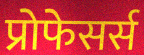
प्रोफेसर्स